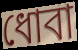
ধোবা